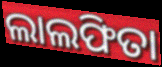
ଲାଲଫିତା